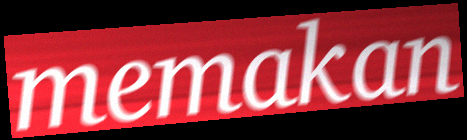
memakan